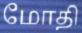
மோதி